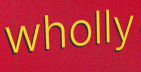
wholly